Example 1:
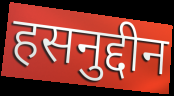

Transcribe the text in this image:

हसनुद्दीन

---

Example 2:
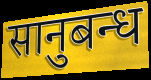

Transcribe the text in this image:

सानुबन्ध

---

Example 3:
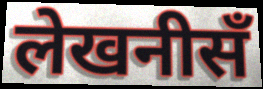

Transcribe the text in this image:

लेखनीसँ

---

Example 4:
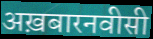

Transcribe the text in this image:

अख़बारनवीसी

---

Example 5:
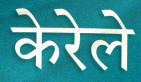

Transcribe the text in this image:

केरेले